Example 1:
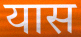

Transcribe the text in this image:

यास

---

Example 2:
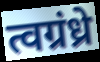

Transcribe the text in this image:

त्वग्रंध्रे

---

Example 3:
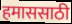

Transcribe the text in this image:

हमाससाठी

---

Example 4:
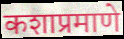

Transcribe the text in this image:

कशाप्रमाणे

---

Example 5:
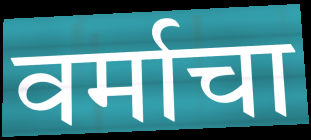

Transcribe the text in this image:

वर्माचा